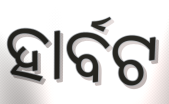
ହାର୍ବଟ